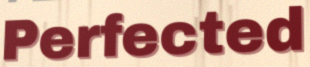
Perfected